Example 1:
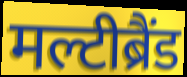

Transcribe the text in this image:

मल्टीब्रैंड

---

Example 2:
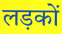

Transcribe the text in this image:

लड़कों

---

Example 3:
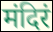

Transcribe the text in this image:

मंदिरं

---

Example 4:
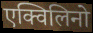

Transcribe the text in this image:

एक्विलिनो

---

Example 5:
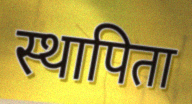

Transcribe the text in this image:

स्थापिता